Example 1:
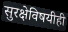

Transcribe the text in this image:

सुरक्षेविषयीही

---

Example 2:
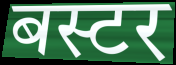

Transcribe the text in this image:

बस्टर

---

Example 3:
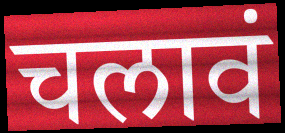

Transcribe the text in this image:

चलावं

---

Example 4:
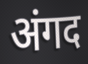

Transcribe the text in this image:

अंगद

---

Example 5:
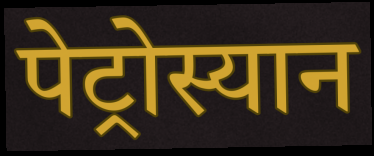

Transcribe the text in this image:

पेट्रोस्यान